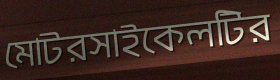
মোটরসাইকেলটির